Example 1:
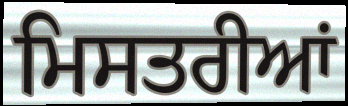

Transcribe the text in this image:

ਮਿਸਤਰੀਆਂ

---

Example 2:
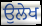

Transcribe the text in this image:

ਉਲੇਖ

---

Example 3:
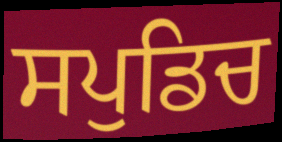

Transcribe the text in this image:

ਸਪੁਡਿਚ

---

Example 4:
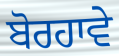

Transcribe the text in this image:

ਬੋਰਹਾਵੇ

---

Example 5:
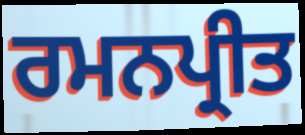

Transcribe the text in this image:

ਰਮਨਪ੍ਰੀਤ